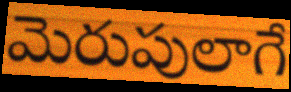
మెరుపులాగే